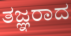
ತಜ್ಞರಾದ